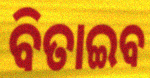
ବିତାଇବ